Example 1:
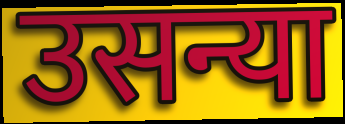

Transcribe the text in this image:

उसन्या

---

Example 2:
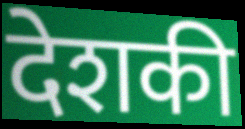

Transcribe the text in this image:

देशकी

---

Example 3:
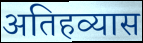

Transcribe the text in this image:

अतिहव्यास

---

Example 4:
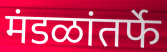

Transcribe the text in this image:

मंडळांतर्फे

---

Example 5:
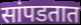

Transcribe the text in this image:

सांपडतात